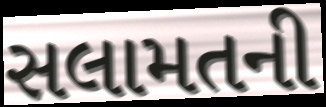
સલામતની